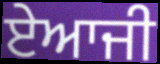
ਏਆਜੀ